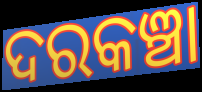
ଦରକଞ୍ଚା